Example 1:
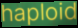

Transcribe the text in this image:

haploid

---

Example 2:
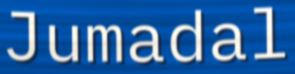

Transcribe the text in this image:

Jumadal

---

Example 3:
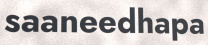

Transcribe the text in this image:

saaneedhapa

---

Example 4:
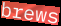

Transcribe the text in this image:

brews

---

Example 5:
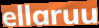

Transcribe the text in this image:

ellaruu